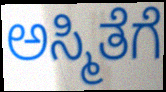
ಅಸ್ಮಿತೆಗೆ